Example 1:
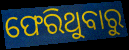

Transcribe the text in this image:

ଫେରିଥୁବାରୁ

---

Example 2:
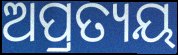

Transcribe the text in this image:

ଅପ୍ରତ୍ୟୟ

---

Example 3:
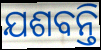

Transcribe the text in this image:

ଯଶବନ୍ତି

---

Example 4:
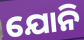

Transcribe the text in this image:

ଯୋନି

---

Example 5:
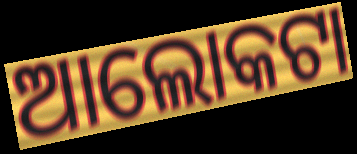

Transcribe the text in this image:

ଆଲୋକଟା